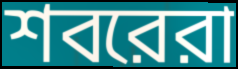
শবরেরা